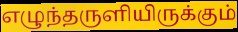
எழுந்தருளியிருக்கும்